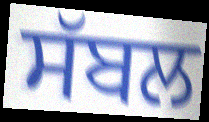
ਸੱਬਲ